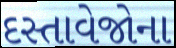
દસ્તાવેજોના